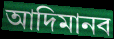
আদিমানব